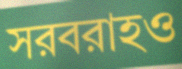
সরবরাহও